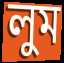
লুম